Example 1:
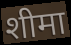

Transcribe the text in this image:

शीमा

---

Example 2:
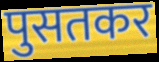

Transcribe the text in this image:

पुसतकर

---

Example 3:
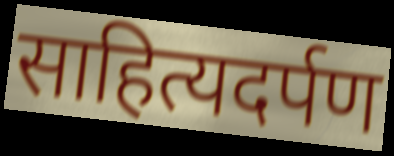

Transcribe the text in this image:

साहित्यदर्पण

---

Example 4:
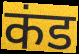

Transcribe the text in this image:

कंड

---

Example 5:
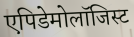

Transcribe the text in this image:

एपिडेमोलॉजिस्ट